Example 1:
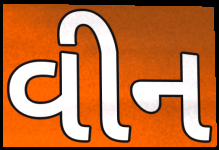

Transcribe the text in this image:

વીન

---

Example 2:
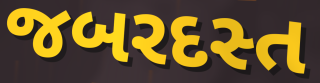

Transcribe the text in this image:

જબરદસ્ત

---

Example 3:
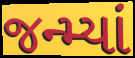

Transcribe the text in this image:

જન્મ્યાં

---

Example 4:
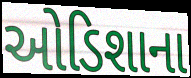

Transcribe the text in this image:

ઓડિશાના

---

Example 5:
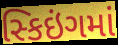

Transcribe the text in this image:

સ્કિઇંગમાં